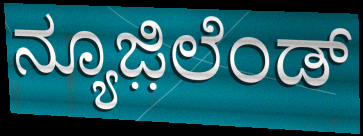
ನ್ಯೂಜ಼ಿಲೆಂಡ್